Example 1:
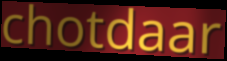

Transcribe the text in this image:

chotdaar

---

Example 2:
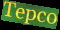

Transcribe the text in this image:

Tepco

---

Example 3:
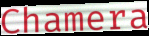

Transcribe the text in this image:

Chamera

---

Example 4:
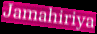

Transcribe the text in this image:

Jamahiriya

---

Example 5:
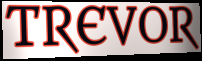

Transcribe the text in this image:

TREVOR